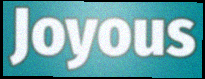
Joyous